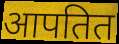
आपतित